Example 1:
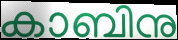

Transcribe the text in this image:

കാബിനു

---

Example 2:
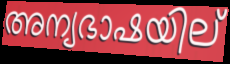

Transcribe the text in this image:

അന്യഭാഷയില്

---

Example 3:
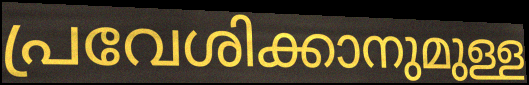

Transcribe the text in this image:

പ്രവേശിക്കാനുമുള്ള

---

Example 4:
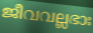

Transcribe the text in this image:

ജീവവല്ലഭാഃ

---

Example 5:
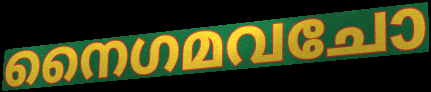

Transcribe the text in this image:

നൈഗമവചോ